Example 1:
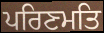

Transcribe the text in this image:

ਪਰਿਣਮਤਿ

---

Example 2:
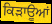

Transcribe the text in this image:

ਕਿੜਾਊਆਂ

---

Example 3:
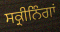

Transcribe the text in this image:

ਸਕ੍ਰੀਨਿੰਗਾਂ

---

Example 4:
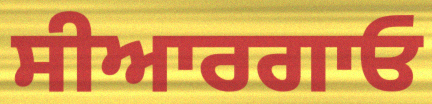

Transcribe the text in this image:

ਸੀਆਰਗਾਓ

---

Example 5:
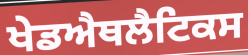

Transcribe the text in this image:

ਖੇਡਐਥਲੈਟਿਕਸ